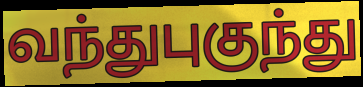
வந்துபுகுந்து